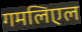
गमलिएल